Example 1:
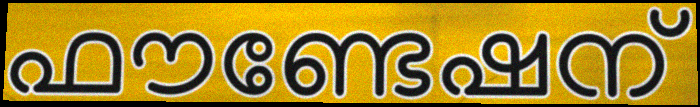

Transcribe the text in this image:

ഫൗണ്ടേഷന്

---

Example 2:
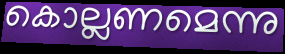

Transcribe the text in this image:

കൊല്ലണമെന്നു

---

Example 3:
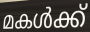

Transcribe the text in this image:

മകൾക്ക്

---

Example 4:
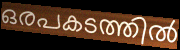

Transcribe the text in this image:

ഒരപകടത്തിൽ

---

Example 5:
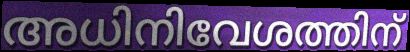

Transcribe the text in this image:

അധിനിവേശത്തിന്